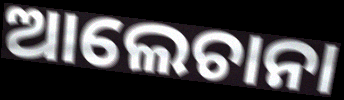
ଆଲେଚାନା